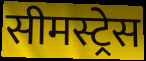
सीमस्ट्रेस